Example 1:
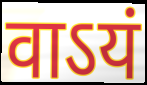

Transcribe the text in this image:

वाऽयं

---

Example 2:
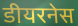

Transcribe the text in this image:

डीयरनेस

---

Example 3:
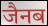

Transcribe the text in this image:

जैनब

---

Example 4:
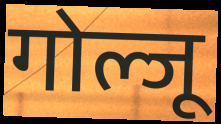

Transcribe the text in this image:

गोल्जू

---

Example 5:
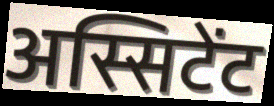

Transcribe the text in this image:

अस्सिटेंट